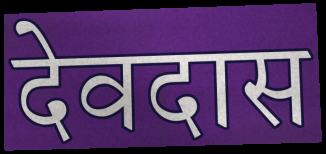
देवदास